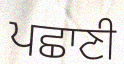
ਪਛਾਣੀ